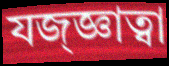
যজ্জ্ঞাত্বা